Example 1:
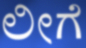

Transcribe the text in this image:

ಲೀಗೆ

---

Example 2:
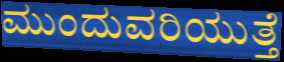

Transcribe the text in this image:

ಮುಂದುವರಿಯುತ್ತೆ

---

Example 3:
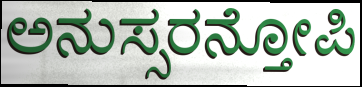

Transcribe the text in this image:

ಅನುಸ್ಸರನ್ತೋಪಿ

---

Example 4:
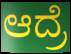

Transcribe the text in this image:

ಆದ್ರೆ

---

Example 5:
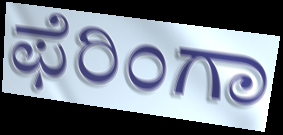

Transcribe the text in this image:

ಫೆರಿಂಗಾ